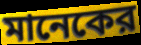
মানেকের